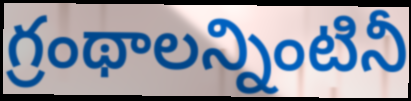
గ్రంథాలన్నింటినీ